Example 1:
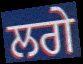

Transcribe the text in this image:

ਲਗੇ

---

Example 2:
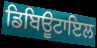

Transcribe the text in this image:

ਡਿਬਿਊਟਾਇਲ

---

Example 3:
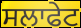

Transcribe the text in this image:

ਸਲਾਫੇਟ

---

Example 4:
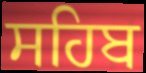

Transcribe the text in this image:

ਸਹਿਬ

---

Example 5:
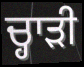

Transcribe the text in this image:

ਚ੍ਹਾੜੀ